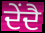
ਦੇਂਦੈ